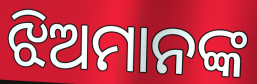
ଝିଅମାନଙ୍କ